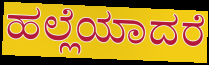
ಹಲ್ಲೆಯಾದರೆ